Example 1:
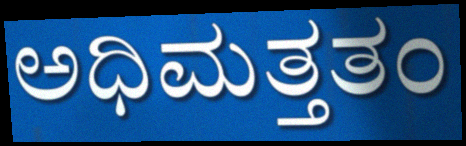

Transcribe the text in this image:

ಅಧಿಮತ್ತತಂ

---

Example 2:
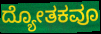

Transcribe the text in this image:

ದ್ಯೋತಕವೂ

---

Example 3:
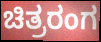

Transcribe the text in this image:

ಚಿತ್ರರಂಗ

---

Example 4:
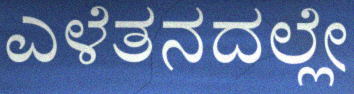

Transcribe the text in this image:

ಎಳೆತನದಲ್ಲೇ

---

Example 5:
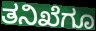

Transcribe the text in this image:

ತನಿಖೆಗೂ